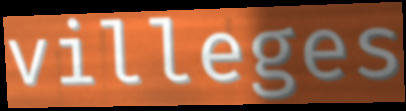
villeges